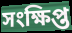
সংক্ষিপ্ত